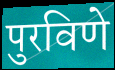
पुरविणे